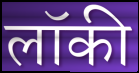
लॉकी